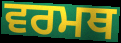
ਵਰਮਥ